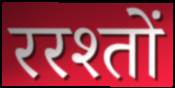
ररश्तों